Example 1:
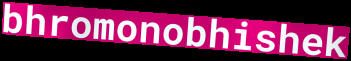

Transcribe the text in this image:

bhromonobhishek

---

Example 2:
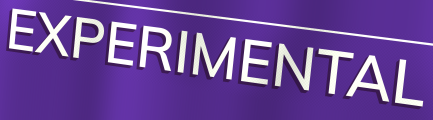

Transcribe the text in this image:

EXPERIMENTAL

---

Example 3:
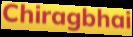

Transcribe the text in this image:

Chiragbhai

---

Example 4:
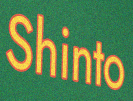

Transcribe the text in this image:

Shinto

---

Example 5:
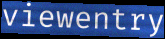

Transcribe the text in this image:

viewentry